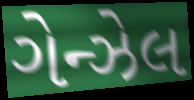
ગેન્ઝેલ